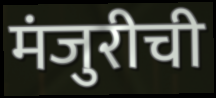
मंजुरीची